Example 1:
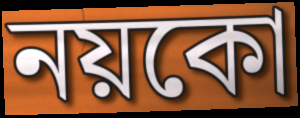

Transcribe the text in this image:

নয়কো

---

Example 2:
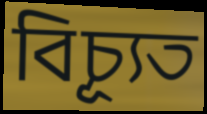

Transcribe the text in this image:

বিচ্যূত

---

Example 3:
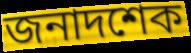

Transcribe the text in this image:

জনাদশেক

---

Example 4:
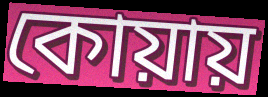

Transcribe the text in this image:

কোয়ায়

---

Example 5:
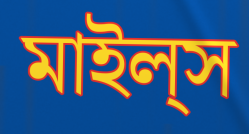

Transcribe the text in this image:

মাইল্‌স